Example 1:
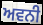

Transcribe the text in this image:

ਅਵਨੀ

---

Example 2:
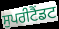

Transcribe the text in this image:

ਸੁਪਰੀਟੈਂਡਟ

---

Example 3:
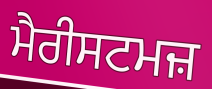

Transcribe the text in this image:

ਮੈਰੀਸਟਮਜ਼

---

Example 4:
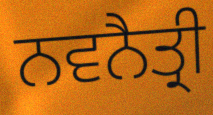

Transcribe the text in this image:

ਨਵਨੈਤ੍ਰੀ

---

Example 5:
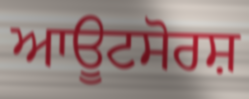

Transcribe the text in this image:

ਆਊਟਸੋਰਸ਼